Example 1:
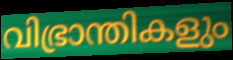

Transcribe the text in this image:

വിഭ്രാന്തികളും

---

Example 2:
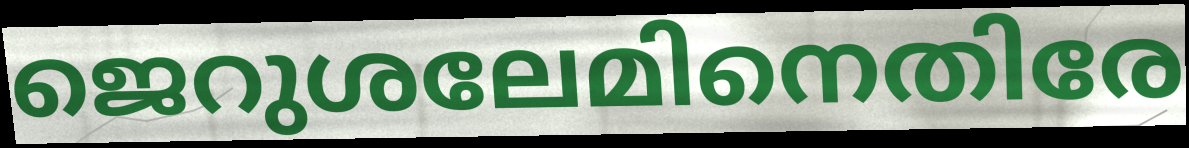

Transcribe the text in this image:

ജെറുശലേമിനെതിരേ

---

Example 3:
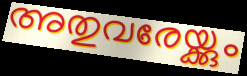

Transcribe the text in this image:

അതുവരേയ്ക്കും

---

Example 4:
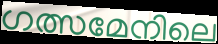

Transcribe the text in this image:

ഗത്സമേനിലെ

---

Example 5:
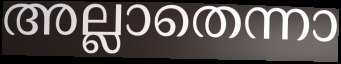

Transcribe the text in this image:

അല്ലാതെന്നാ